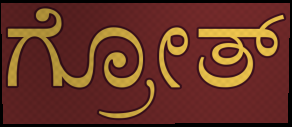
ಗ್ರೋತ್